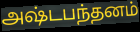
அஷ்டபந்தனம்